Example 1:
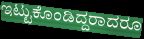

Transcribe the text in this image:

ಇಟ್ಟುಕೊಂಡಿದ್ದರಾದರೂ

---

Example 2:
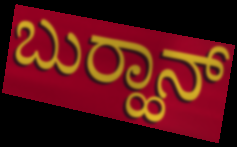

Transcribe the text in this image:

ಬುರ‍್ಹಾನ್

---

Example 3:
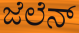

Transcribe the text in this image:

ಜೆಲೆನ್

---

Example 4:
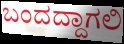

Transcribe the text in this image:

ಬಂದದ್ದಾಗಲಿ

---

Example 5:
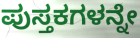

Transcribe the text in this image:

ಪುಸ್ತಕಗಳನ್ನೇ